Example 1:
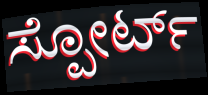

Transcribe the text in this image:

ಸ್ಪೋರ್ಟ್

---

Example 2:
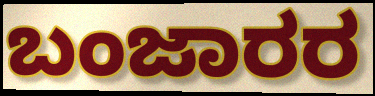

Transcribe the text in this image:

ಬಂಜಾರರ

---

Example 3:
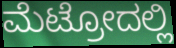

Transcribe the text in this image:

ಮೆಟ್ರೋದಲ್ಲಿ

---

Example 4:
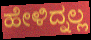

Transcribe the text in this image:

ಹೇಳಿದ್ನಲ್ಲ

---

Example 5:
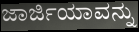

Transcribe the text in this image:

ಜಾರ್ಜಿಯಾವನ್ನು